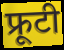
फ्रूटी